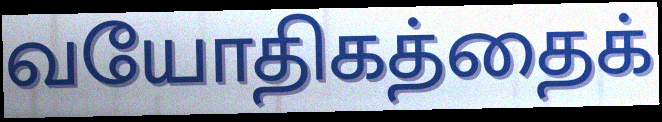
வயோதிகத்தைக்